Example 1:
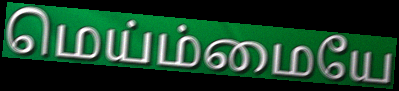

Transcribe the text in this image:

மெய்ம்மையே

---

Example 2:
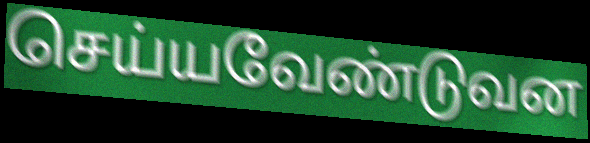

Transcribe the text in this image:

செய்யவேண்டுவன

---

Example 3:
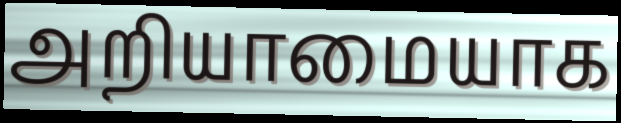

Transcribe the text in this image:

அறியாமையாக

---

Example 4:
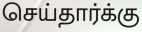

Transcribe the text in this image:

செய்தார்க்கு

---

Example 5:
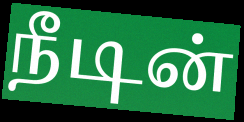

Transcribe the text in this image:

நீடின்